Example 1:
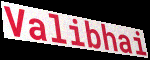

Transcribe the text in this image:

Valibhai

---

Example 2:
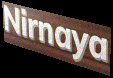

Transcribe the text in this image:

Nirnaya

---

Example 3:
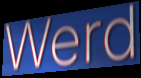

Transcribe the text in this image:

Werd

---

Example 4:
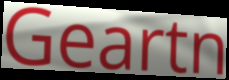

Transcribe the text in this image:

Geartn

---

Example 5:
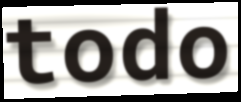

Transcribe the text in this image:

todo